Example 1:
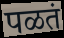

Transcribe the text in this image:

पळतं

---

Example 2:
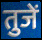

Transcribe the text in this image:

तुजें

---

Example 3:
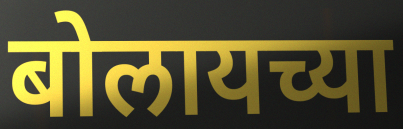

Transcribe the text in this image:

बोलायच्या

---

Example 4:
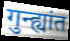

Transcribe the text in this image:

गुन्ह्यांत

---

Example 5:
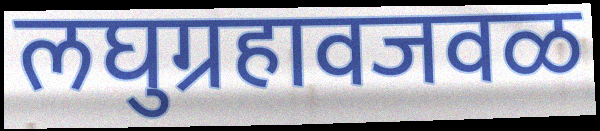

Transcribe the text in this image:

लघुग्रहावजवळ